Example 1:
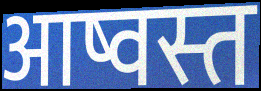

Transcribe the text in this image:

आष्वस्त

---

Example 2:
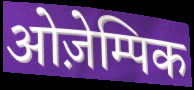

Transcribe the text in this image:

ओज़ेम्पिक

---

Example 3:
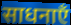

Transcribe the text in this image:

साधनाएँ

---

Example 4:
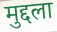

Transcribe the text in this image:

मुद्दला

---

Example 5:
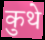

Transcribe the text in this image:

कुथे